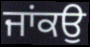
ਜਾਂਕਉ